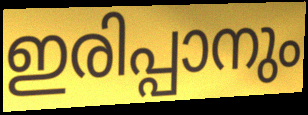
ഇരിപ്പാനും